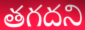
తగదని